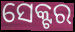
ସେକ୍ଟର